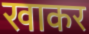
खाकर